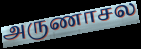
அருணாசல